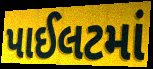
પાઈલટમાં